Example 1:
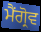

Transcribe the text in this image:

ਮੈਂਗ੍ਰੋਵ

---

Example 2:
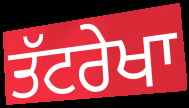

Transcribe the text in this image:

ਤੱਟਰੇਖਾ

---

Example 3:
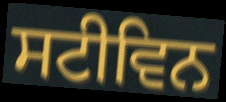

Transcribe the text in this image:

ਸਟੀਵਿਨ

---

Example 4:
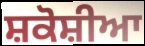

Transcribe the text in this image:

ਸ਼ਕੋਸ਼ੀਆ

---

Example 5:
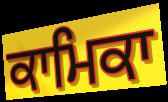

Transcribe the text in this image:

ਕਾਮਿਕਾ